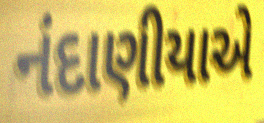
નંદાણીયાએ